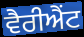
ਵੈਰੀਐਂਟ